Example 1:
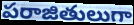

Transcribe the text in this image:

పరాజితులుగా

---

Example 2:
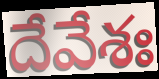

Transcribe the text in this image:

దేవేశః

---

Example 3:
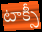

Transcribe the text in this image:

టాక్సీ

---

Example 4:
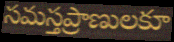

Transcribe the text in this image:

సమస్తప్రాణులకూ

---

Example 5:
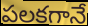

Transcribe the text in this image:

పలకగానే